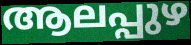
ആലപ്പുഴ